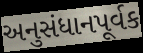
અનુસંધાનપૂર્વક